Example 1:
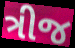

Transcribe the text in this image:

ત્રીજ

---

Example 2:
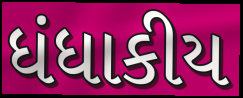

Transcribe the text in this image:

ધંધાકીય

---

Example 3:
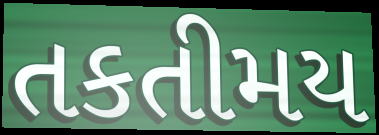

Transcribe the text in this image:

તકતીમય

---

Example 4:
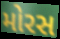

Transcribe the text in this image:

મોરસ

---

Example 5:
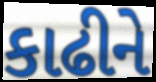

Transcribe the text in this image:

કાઢીને